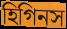
হিগিনস